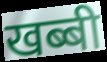
खब्बी